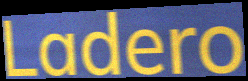
Ladero